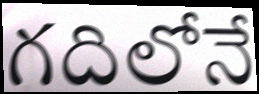
గదిలోనే